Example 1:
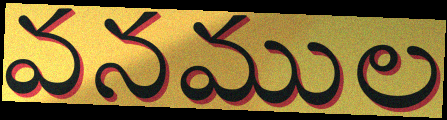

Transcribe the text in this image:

వనముల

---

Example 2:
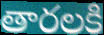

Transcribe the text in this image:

తారలకి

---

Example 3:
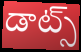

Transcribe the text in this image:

డాట్స్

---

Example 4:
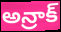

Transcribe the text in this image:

అన్రాక్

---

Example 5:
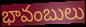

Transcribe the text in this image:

భావంబులు